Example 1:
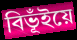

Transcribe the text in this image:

বিভূঁইয়ে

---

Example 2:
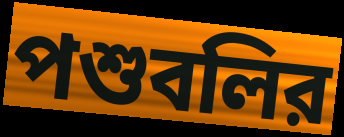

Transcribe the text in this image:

পশুবলির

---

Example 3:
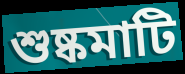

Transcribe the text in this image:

শুষ্কমাটি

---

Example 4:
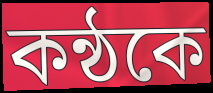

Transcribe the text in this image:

কন্ঠকে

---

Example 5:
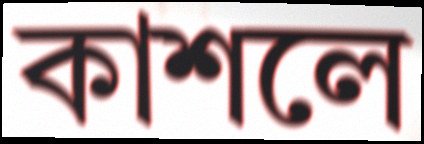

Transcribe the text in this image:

কাশলে